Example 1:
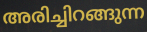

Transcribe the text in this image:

അരിച്ചിറങ്ങുന്ന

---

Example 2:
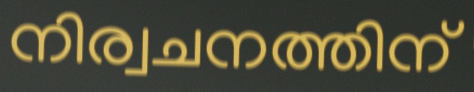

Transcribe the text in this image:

നിര്വചനത്തിന്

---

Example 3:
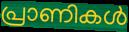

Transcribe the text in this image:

പ്രാണികൾ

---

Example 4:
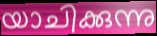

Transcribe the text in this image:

യാചിക്കുന്നു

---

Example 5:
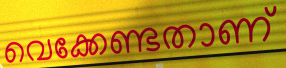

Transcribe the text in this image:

വെക്കേണ്ടതാണ്